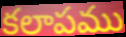
కలాపము